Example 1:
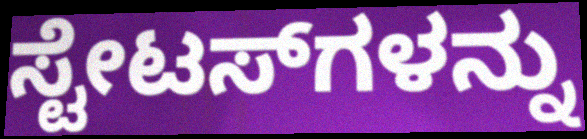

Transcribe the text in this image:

ಸ್ಟೇಟಸ್‌ಗಳನ್ನು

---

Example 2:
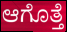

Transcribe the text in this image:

ಆಗೊತ್ತೆ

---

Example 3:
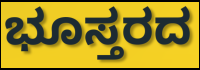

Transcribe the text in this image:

ಭೂಸ್ತರದ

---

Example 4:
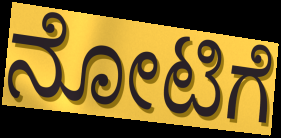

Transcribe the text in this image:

ನೋಟಿಗೆ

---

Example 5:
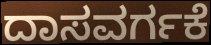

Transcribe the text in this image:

ದಾಸವರ್ಗಕೆ